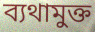
ব্যথামুক্ত